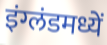
इंग्लंडमध्यें